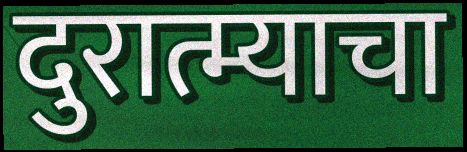
दुरात्म्याचा